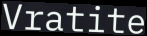
Vratite